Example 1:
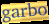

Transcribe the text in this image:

garbo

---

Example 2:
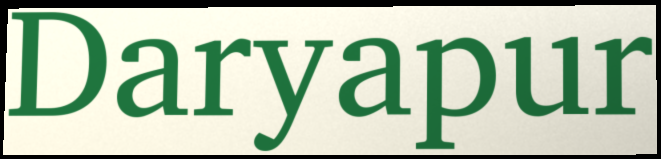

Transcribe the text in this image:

Daryapur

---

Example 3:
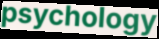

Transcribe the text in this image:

psychology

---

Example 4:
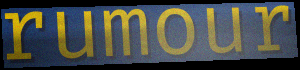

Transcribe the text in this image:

rumour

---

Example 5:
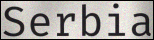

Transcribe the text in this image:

Serbia